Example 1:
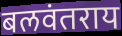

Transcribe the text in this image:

बलवंतराय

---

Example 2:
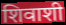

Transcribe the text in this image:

शिवाशी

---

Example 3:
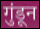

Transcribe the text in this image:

गुंडून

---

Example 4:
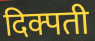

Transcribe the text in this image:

दिक्पती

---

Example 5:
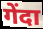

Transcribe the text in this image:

गेंदा